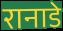
रानाडे